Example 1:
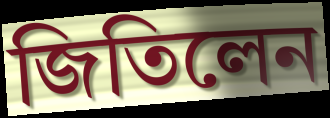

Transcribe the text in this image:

জিতিলেন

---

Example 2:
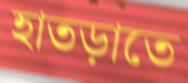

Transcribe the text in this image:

হাতড়াতে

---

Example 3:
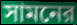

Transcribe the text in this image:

সামনের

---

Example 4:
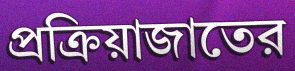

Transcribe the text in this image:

প্রক্রিয়াজাতের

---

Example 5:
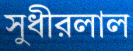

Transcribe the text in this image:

সুধীরলাল